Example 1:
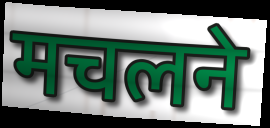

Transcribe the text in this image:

मचलने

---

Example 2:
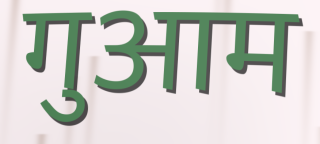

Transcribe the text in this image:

गुआम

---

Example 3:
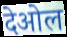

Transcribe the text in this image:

देओल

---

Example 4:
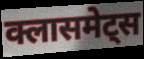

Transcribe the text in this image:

क्लासमेट्स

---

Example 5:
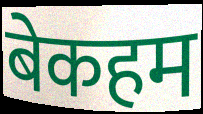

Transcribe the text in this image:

बेकहम